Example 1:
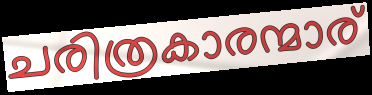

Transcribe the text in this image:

ചരിത്രകാരന്മാര്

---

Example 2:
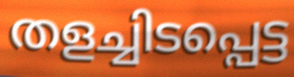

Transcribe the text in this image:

തളച്ചിടപ്പെട്ട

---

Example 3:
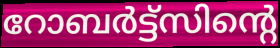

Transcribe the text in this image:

റോബർട്ട്സിന്റെ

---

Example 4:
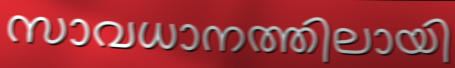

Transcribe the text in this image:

സാവധാനത്തിലായി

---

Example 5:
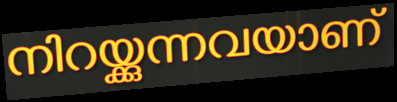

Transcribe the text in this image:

നിറയ്ക്കുന്നവയാണ്